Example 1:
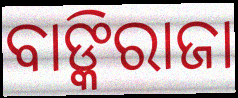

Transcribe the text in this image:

ବାଙ୍କିରାଜା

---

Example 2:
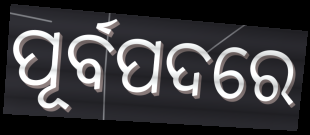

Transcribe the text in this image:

ପୂର୍ବପଦରେ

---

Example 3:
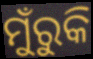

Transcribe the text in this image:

ମୁଁରୁକି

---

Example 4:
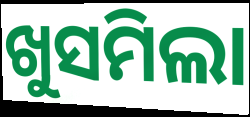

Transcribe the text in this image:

ଖୁସମିଲା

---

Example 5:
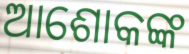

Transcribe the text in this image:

ଆଶୋକଙ୍କ